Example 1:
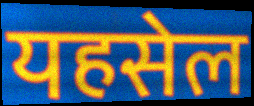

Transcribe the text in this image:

यहसेल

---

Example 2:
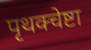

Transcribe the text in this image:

पृथक्चेष्टा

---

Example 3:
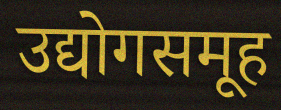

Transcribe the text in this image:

उद्योगसमूह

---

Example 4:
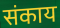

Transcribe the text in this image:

संकाय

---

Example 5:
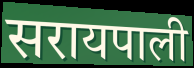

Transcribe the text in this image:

सरायपाली